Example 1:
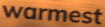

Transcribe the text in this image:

warmest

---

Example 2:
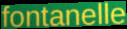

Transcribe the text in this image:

fontanelle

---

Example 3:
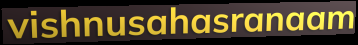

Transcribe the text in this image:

vishnusahasranaam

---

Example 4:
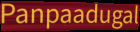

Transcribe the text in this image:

Panpaadugal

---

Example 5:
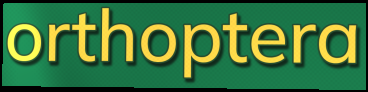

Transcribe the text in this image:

orthoptera